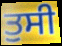
ਤੁਸੀ